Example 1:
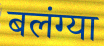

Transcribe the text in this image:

बलंग्या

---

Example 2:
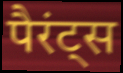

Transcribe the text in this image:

पैरंट्स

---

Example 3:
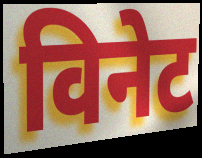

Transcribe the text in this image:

विनेट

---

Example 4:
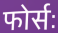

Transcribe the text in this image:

फोर्सः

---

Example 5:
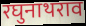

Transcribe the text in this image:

रघुनाथराव